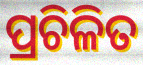
ପ୍ରଚିଳିତ